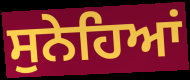
ਸੁਨੇਹਿਆਂ